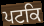
ਪਟਕਿ